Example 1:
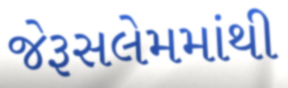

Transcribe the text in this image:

જેરૂસલેમમાંથી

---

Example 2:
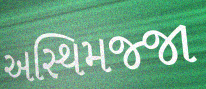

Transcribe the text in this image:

અસ્થિમજ્જા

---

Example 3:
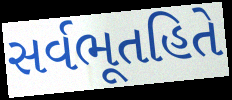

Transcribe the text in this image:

સર્વભૂતહિતે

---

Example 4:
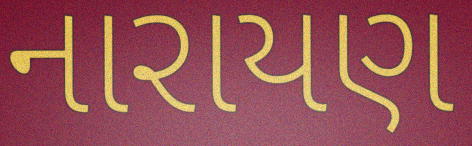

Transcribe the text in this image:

નારાયણ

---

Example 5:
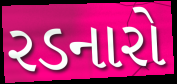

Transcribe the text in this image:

રડનારો